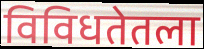
विविधतेतला